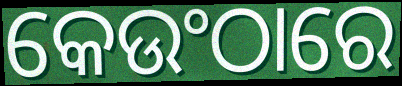
କେଉଂଠାରେ